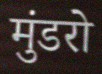
मुंडरो